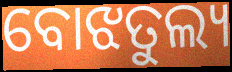
ବୋଝତୁଲ୍ୟ